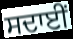
ਸਦਾਈਂ